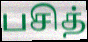
பசித்